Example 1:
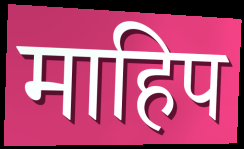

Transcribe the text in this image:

माहिप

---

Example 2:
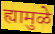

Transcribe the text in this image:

ह्यामुळे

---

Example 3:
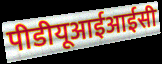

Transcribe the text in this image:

पीडीयूआईआईसी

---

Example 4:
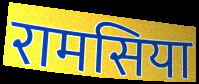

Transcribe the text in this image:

रामसिया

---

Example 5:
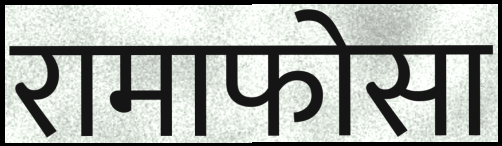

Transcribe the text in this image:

रामाफोसा